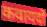
कवायदों